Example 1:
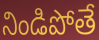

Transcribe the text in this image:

నిండిపోతే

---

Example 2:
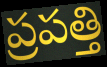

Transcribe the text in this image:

ప్రపత్తి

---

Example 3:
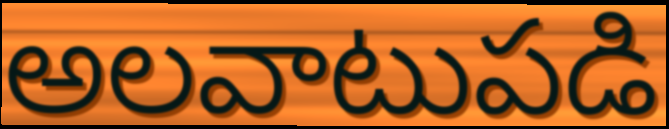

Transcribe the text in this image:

అలవాటుపడి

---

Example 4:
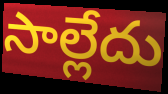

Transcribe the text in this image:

సాల్లేదు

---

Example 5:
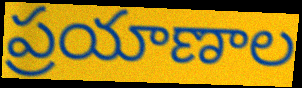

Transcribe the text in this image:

ప్రయాణాల